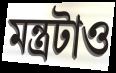
মন্ত্রটাও